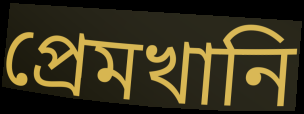
প্রেমখানি